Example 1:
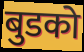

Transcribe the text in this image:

बुडको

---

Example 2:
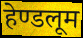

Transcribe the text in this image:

हेण्डलूम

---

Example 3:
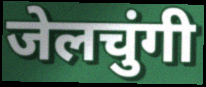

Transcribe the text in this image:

जेलचुंगी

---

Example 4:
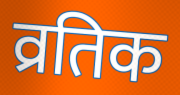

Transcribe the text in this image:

व्रतिक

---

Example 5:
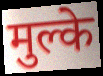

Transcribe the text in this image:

मुल्के